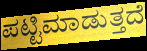
ಪಟ್ಟಿಮಾಡುತ್ತದೆ